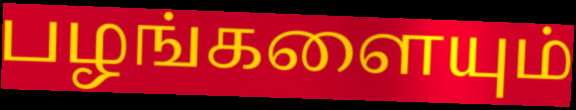
பழங்களையும்